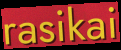
rasikai